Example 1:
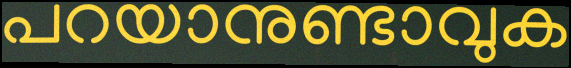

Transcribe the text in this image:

പറയാനുണ്ടാവുക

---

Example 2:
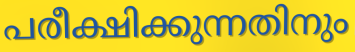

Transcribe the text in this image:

പരീക്ഷിക്കുന്നതിനും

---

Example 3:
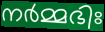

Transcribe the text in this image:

നർമ്മഭിഃ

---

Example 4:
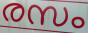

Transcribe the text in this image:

രസം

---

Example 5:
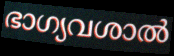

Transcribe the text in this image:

ഭാഗ്യവശാൽ